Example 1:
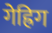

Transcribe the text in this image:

गेह्रिग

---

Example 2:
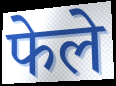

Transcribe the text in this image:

फेले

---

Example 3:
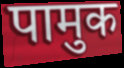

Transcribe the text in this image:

पामुक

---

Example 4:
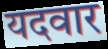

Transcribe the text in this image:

यदवार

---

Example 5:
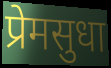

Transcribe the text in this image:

प्रेमसुधा